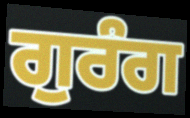
ਗੁਰੰਗ